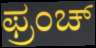
ಫ್ರಂಚ್